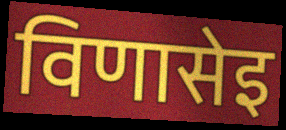
विणासेइ